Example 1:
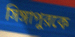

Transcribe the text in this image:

সিঙ্গাপুরকে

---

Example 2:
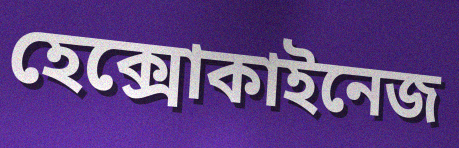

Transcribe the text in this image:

হেক্সোকাইনেজ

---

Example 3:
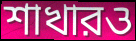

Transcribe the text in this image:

শাখারও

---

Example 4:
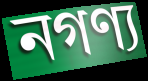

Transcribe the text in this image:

নগণ্য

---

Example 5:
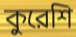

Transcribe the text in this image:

কুরেশি